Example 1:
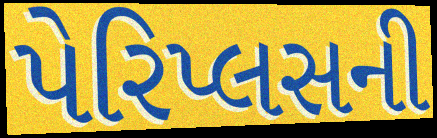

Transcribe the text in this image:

પેરિપ્લસની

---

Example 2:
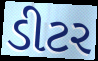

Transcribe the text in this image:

ડીટર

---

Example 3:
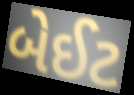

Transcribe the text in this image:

બેઈટ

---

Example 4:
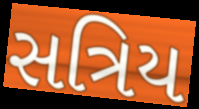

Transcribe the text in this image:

સત્રિય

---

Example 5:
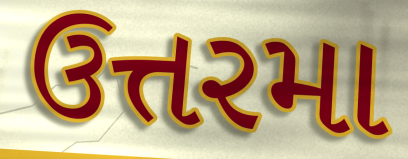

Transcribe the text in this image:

ઉત્તરમા